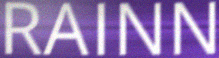
RAINN